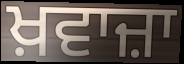
ਖ਼ਵਾਜ਼ਾ